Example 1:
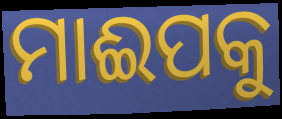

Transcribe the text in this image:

ମାଈପକୁ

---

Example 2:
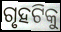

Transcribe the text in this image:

ଗୃହଟିକୁ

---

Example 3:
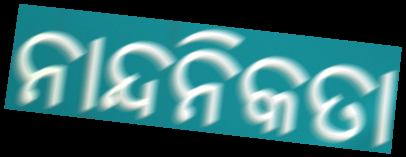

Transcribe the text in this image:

ନାନ୍ଦନିକତା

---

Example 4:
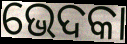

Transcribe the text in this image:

ଭେଦକା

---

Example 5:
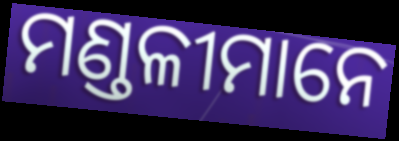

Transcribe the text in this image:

ମଣ୍ଡଳୀମାନେ